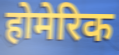
होमेरिक